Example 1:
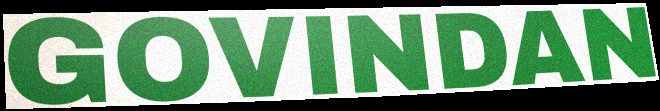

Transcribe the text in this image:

GOVINDAN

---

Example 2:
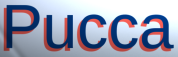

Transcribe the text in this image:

Pucca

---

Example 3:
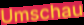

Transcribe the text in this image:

Umschau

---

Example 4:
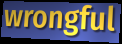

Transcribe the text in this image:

wrongful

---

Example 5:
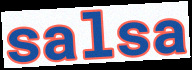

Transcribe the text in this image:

salsa